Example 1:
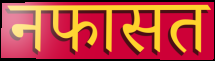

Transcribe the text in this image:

नफासत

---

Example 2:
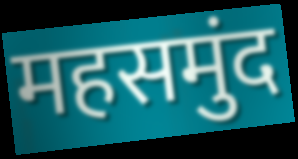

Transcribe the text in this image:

महसमुंद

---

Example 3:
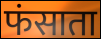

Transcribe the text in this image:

फंसाता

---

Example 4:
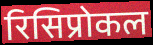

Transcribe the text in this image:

रिसिप्रोकल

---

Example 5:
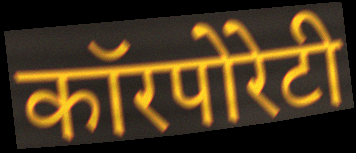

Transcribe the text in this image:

कॉरपोरेटी